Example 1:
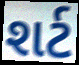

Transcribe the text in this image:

શર્ટ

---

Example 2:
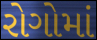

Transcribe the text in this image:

રોગોમાં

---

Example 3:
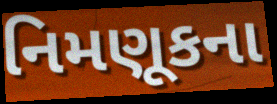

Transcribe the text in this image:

નિમણૂકના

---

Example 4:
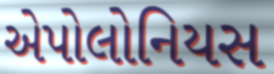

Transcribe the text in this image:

એપોલોનિયસ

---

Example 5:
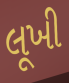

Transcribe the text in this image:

લૂખી